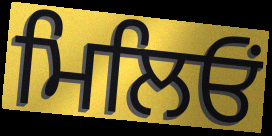
ਮਿਲਿਓਂ